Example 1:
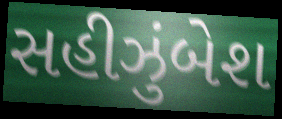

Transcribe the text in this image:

સહીઝુંબેશ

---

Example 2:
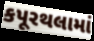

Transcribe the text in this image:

કપૂરથલામાં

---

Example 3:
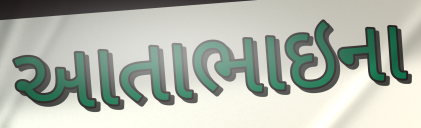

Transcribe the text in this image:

આતાભાઇના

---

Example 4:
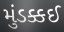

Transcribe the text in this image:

મુંડક્કઈ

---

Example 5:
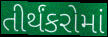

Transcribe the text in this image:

તીર્થંકરોમાં